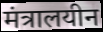
मंत्रालयीन